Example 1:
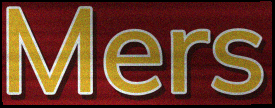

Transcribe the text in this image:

Mers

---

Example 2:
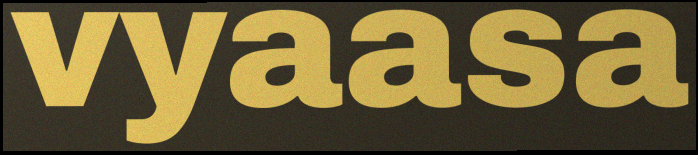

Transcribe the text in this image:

vyaasa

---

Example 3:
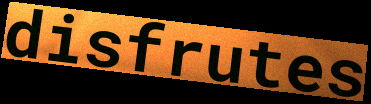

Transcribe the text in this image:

disfrutes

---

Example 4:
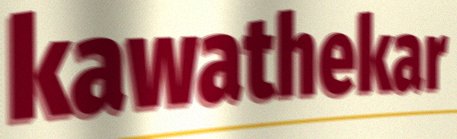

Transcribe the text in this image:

kawathekar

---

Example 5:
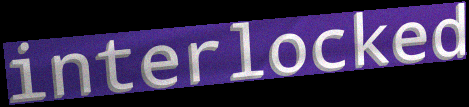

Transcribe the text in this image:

interlocked